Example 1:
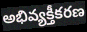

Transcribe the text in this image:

అభివ్యక్తీకరణ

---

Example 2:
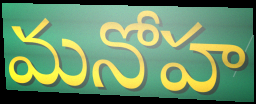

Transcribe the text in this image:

మనోహ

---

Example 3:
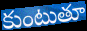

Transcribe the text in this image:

కుంటుతూ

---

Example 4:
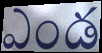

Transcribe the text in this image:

ఎండ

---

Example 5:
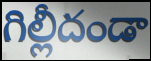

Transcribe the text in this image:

గిల్లీదండా